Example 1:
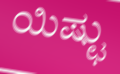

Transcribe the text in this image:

ಯಿಷ್ಟು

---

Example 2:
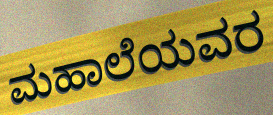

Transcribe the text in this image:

ಮಹಾಲೆಯವರ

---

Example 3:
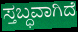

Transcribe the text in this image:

ಸ್ತಬ್ಧವಾಗಿದೆ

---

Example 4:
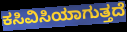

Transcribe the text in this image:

ಕಸಿವಿಸಿಯಾಗುತ್ತದೆ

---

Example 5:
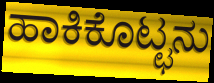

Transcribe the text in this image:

ಹಾಕಿಕೊಟ್ಟನು